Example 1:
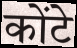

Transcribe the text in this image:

कोंटे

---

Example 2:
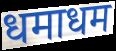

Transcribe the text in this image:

धमाधम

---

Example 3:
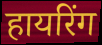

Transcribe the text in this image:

हायरिंग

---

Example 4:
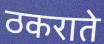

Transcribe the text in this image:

ठकराते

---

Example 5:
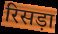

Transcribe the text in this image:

रिसड़ा